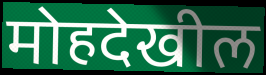
मोहदेखील